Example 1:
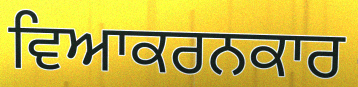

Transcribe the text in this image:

ਵਿਆਕਰਨਕਾਰ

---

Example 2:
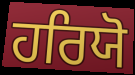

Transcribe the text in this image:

ਹਰਿਯੋ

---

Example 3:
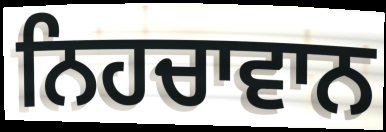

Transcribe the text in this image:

ਨਿਹਚਾਵਾਨ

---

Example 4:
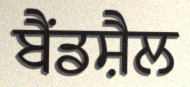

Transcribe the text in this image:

ਬੈਂਡਸ਼ੈਲ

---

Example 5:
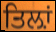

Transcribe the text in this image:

ਤਿਲ਼ਾਂ